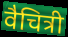
वैचित्री